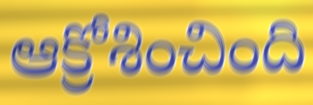
ఆక్రోశించింది